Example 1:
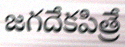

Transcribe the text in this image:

జగదేకపిత్రే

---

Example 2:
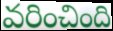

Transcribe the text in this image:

వరించింది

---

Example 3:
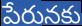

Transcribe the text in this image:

పేరునకు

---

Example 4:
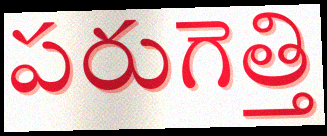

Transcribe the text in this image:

పరుగెత్తి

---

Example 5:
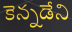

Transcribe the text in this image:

కెన్నడేని